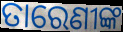
ତାରେଣୀଙ୍କ